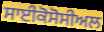
ਸਾਈਕੋਸੋਸੀਅਲ